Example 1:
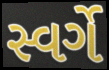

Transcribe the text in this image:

સ્વર્ગે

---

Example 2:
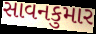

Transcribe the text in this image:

સાવનકુમાર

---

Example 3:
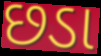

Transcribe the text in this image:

છડા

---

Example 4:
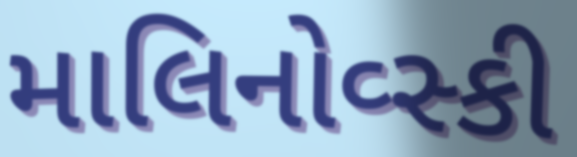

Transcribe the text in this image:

માલિનોવ્સ્કી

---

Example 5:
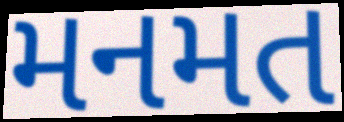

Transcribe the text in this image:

મનમત